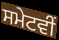
ਸਮੇਟਵੀਂ